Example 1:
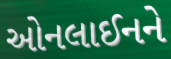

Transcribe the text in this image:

ઓનલાઈનને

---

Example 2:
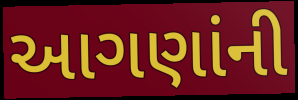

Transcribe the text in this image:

આગણાંની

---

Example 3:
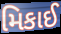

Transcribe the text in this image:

મિકાઈ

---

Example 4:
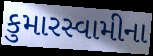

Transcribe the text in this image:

કુમારસ્વામીના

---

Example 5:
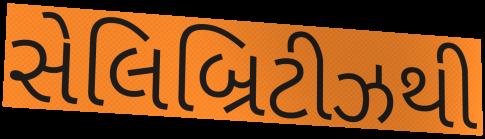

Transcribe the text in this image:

સેલિબ્રિટીઝથી